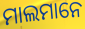
ମାଲମାନେ